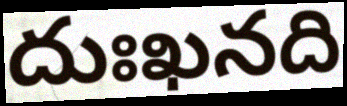
దుఃఖనది